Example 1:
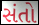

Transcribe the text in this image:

સંતો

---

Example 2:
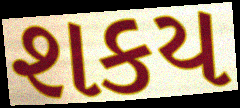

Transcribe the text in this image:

શકય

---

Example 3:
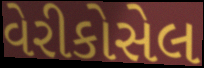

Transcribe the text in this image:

વેરીકોસેલ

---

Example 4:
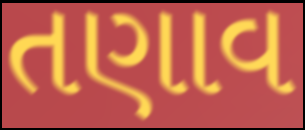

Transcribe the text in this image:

તણાવ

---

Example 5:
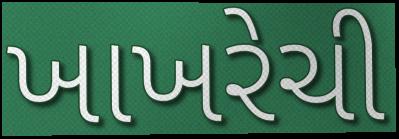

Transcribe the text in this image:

ખાખરેચી